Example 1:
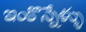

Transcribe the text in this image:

ఇంకొన్నేళ్ళు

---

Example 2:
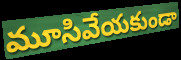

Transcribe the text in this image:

మూసివేయకుండా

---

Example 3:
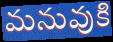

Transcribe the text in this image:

మనువుకి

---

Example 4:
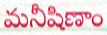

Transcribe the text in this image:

మనీషిణాం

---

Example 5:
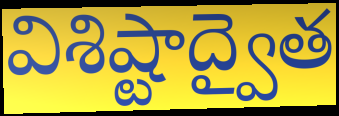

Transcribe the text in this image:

విశిష్టాద్వైత